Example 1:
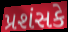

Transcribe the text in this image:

પ્રશંસકે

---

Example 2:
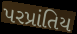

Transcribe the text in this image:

પરપ્રાંતિય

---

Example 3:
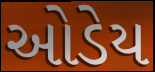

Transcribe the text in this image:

ઓડેય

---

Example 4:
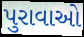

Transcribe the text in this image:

પુરાવાઓ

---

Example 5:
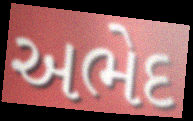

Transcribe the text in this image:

અભેદ